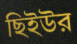
ছিইউর